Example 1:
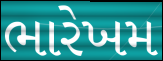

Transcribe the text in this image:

ભારેખમ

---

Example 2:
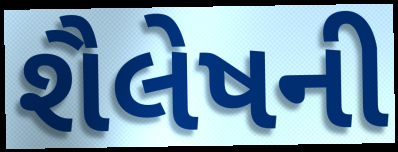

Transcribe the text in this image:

શૈલેષની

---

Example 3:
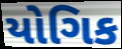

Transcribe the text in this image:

યોગિક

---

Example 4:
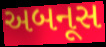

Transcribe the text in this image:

અબનૂસ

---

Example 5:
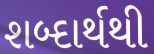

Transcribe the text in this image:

શબ્દાર્થથી